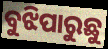
ବୁଝିପାରୁଛୁ